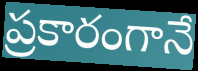
ప్రకారంగానే